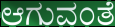
ಆಗುವಂತೆ